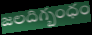
జలదిగ్బంధం